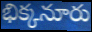
భిక్కనూరు